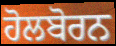
ਹੋਲਬੋਰਨ